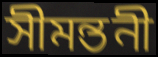
সীমন্তনী